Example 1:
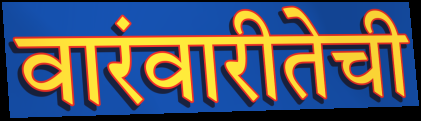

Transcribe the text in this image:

वारंवारीतेची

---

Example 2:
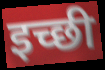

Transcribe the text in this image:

इच्छी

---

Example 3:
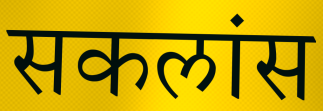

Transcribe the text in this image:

सकलांस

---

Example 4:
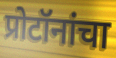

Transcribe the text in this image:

प्रोटॉनांचा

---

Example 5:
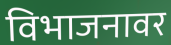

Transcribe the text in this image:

विभाजनावर